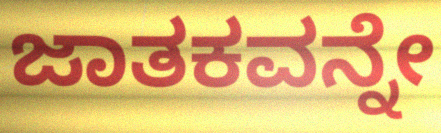
ಜಾತಕವನ್ನೇ